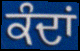
ਕੰਦਾਂ